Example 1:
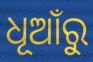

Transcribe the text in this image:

ଧୂଆଁରୁ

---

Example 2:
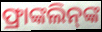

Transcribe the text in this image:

ଫ୍ରାଙ୍କଲିନ୍‌ଙ୍କ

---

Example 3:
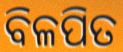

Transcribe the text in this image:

ବିଳପିତ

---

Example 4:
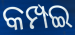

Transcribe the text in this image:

କମ୍ପଇ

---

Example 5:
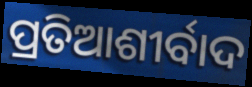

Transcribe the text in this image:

ପ୍ରତିଆଶୀର୍ବାଦ